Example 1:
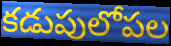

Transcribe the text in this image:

కడుపులోపల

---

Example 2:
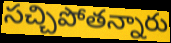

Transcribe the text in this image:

సచ్చిపోతన్నారు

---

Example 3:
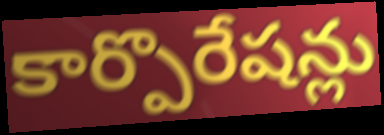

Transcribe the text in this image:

కార్పొరేషన్లు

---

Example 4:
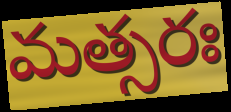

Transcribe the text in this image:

మత్సరః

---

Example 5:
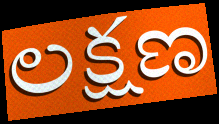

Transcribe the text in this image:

లక్షణ